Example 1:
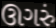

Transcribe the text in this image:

ઊગરું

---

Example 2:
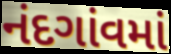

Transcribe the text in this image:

નંદગાંવમાં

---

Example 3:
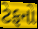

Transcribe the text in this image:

ટેફનો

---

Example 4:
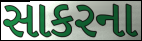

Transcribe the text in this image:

સાકરના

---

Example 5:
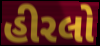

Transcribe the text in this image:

હીરલો